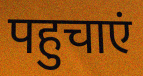
पहुचाएं